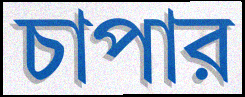
চাপার